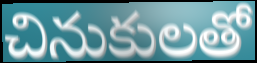
చినుకులతో